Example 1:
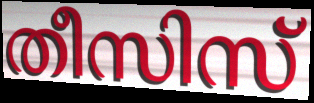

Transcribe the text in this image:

തീസിസ്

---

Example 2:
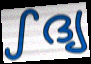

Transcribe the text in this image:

ഽദ്യ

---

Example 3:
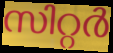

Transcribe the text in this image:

സിറ്റർ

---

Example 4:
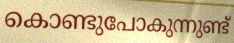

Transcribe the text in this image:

കൊണ്ടുപോകുന്നുണ്ട്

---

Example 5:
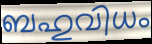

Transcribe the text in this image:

ബഹുവിധം